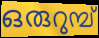
ഒരുറുമ്പ്